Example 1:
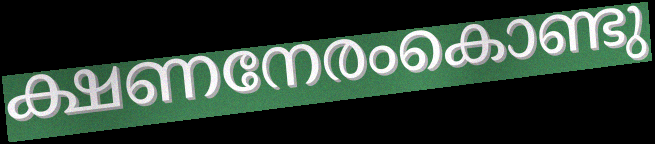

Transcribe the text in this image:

ക്ഷണനേരംകൊണ്ടു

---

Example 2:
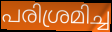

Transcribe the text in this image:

പരിശ്രമിച്ച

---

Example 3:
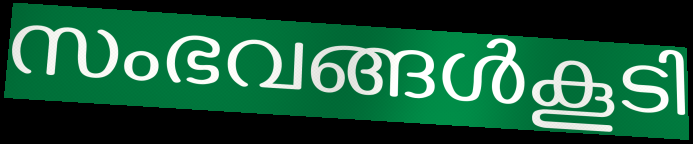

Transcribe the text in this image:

സംഭവങ്ങൾകൂടി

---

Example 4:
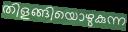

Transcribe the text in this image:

തിളങ്ങിയൊഴുകുന്ന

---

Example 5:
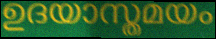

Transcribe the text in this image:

ഉദയാസ്തമയം